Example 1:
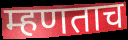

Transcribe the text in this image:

म्हणताच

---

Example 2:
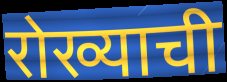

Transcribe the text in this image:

रोख्याची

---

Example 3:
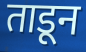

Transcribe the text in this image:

ताडून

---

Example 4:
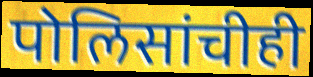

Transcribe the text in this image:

पोलिसांचीही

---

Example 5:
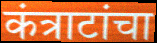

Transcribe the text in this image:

कंत्राटांचा